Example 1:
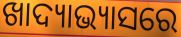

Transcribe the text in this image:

ଖାଦ୍ୟାଭ୍ୟାସରେ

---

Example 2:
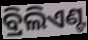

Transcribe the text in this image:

ବ୍ରିଲିଏଣ୍ଟ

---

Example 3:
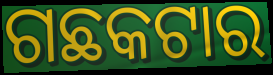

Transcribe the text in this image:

ଗଛକଟାର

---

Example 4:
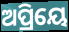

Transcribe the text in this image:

ଅପ୍ରିୟେ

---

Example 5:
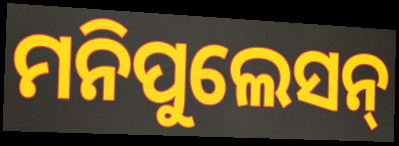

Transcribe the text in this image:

ମନିପୁଲେସନ୍